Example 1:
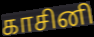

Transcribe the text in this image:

காசினி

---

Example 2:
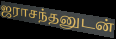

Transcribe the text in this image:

ஜராசந்தனுடன்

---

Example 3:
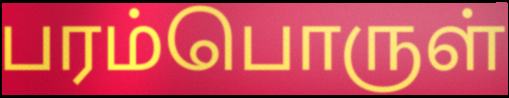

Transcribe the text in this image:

பரம்பொருள்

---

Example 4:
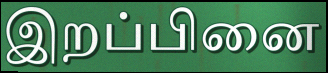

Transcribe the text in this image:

இறப்பினை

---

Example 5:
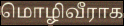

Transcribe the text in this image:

மொழிவீராக